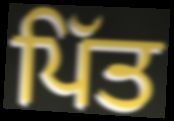
ਪਿੱਤ